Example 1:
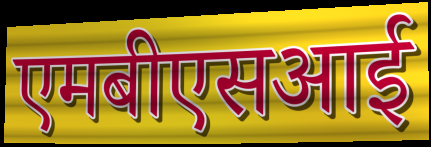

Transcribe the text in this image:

एमबीएसआई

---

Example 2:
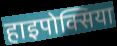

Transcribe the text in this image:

हाइपोक्सिया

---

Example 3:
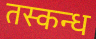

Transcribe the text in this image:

तस्कन्ध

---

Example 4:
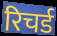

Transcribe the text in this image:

रिचर्ड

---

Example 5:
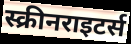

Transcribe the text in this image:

स्क्रीनराइटर्स